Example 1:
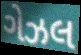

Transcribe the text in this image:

ગેઝલ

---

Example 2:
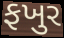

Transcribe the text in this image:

ફખુર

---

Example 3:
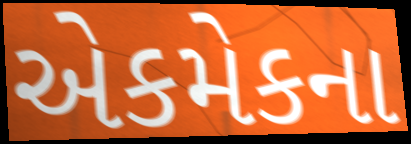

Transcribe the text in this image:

એકમેકના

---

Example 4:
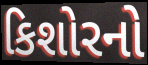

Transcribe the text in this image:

કિશોરનો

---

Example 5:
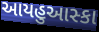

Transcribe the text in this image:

આયહુઆસ્કા